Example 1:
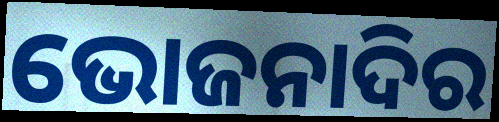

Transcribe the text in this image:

ଭୋଜନାଦିର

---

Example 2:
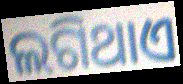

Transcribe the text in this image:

ଲଗିଥାଏ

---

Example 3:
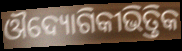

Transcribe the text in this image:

ଔଦ୍ୟୋଗିକୀଭିତ୍ତିକ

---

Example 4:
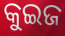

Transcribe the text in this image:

କୁଇଜ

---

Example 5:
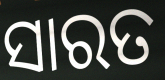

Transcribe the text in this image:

ସାରତ